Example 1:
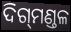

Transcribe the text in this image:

ଦିଗ୍‌ମଣ୍ଡଳ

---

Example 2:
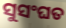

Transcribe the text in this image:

ସୁସଂଘତ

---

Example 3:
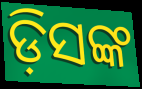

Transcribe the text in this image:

ଡ଼ିସଙ୍କ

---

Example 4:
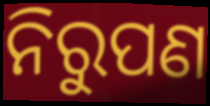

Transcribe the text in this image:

ନିରୁପଣ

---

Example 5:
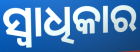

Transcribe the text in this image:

ସ୍ଵାଧିକାର